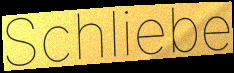
Schliebe